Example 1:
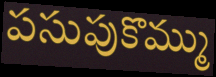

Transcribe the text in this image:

పసుపుకొమ్ము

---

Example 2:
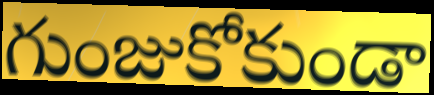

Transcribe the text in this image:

గుంజుకోకుండా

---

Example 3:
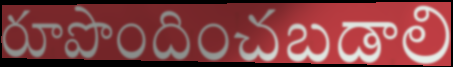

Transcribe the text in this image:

రూపొందించబడాలి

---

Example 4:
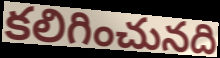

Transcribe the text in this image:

కలిగించునది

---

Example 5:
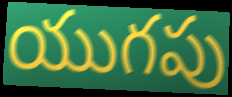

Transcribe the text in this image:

యుగపు